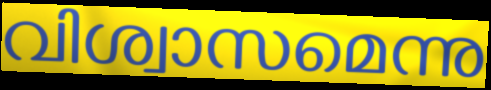
വിശ്വാസമെന്നു